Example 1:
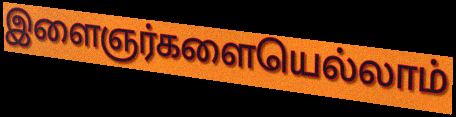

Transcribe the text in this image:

இளைஞர்களையெல்லாம்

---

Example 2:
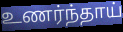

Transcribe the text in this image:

உணர்ந்தாய்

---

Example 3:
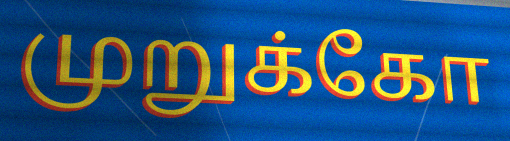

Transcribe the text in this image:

முறுக்கோ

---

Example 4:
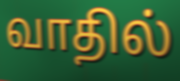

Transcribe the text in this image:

வாதில்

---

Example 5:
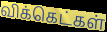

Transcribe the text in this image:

விக்கெட்கள்